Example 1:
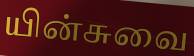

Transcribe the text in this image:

யின்சுவை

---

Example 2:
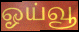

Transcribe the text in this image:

ஓய்வூ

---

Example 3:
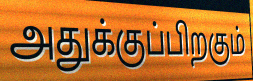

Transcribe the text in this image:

அதுக்குப்பிறகும்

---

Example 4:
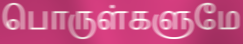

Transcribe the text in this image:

பொருள்களுமே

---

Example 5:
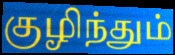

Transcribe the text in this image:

குழிந்தும்